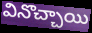
వినొచ్చాయి